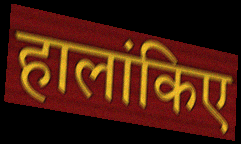
हालांकिए